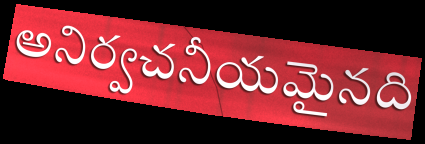
అనిర్వచనీయమైనది